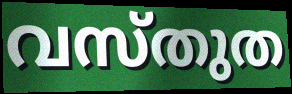
വസ്തുത